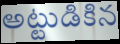
అట్టుడికిన